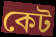
কেট